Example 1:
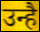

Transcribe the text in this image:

उन्है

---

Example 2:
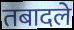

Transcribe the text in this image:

तबादले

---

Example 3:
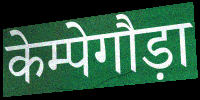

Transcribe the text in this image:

केम्पेगौड़ा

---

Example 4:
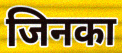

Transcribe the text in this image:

जिनका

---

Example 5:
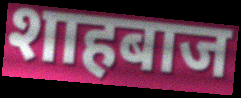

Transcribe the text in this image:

शाहबाज